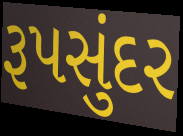
રૂપસુંદર